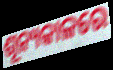
ଶୂନ୍ୟକାଳରେ